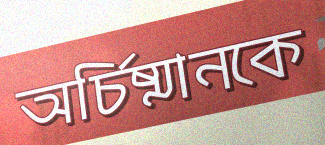
অর্চিষ্মানকে